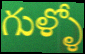
గుళ్ళో